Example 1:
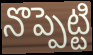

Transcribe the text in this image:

నొప్పెట్టి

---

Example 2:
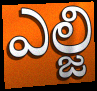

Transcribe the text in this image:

ఎల్జి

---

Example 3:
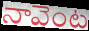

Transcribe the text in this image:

నావెంట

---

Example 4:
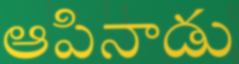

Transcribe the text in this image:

ఆపినాడు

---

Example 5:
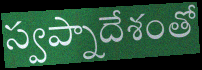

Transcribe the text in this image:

స్వప్నాదేశంతో